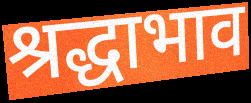
श्रद्धाभाव